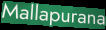
Mallapurana